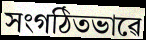
সংগঠিতভাৱে